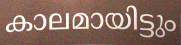
കാലമായിട്ടും